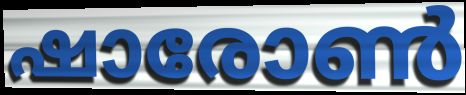
ഷാരോൺ